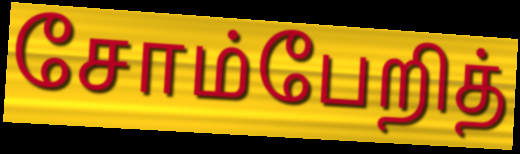
சோம்பேறித்